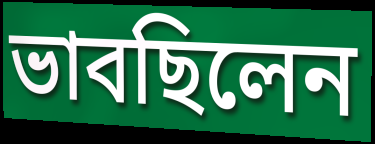
ভাবছিলেন